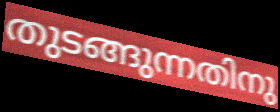
തുടങ്ങുന്നതിനു